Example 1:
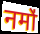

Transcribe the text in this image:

नमो॑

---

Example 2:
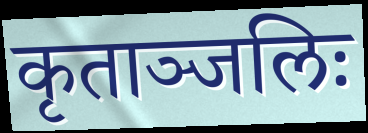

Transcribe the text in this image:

कृताञ्जलिः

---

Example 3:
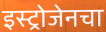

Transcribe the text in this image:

इस्ट्रोजेनचा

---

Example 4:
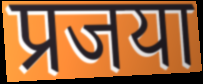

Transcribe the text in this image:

प्रजया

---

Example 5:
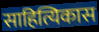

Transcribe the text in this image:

साहित्यिकास